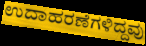
ಉದಾಹರಣೆಗಳಿದ್ದವು